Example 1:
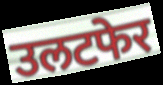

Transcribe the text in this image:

उलटफेर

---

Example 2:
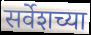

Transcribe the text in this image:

सर्वेशच्या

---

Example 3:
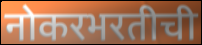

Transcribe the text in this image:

नोकरभरतीची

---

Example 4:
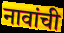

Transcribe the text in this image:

नावांची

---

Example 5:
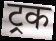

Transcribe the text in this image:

ट्रक